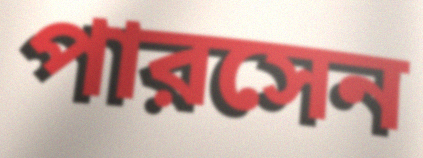
পারসেন